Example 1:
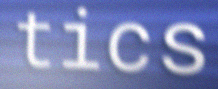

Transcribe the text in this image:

tics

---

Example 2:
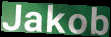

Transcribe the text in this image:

Jakob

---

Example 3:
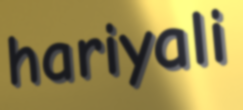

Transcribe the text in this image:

hariyali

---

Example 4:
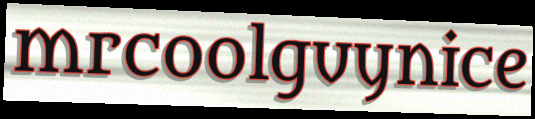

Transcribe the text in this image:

mrcoolguynice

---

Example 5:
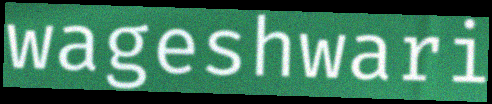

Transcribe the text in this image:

wageshwari